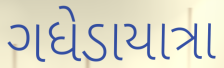
ગધેડાયાત્રા